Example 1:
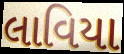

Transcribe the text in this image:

લાવિયા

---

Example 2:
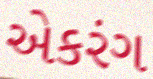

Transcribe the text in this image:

એકરંગ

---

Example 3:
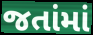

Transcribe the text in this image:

જતાંમાં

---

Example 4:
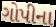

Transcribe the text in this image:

ગોપીના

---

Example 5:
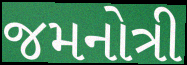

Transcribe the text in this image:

જમનોત્રી